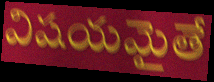
విషయమైతే